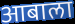
आबाला